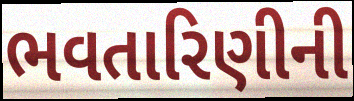
ભવતારિણીની